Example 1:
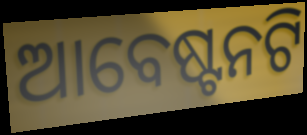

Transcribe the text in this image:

ଆବେଷ୍ଟନଟି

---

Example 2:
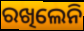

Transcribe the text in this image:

ରଖିଲେନି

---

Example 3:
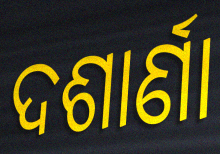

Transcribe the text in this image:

ଦଶାର୍ଣା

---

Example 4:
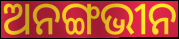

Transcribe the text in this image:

ଅନଙ୍ଗଭୀନ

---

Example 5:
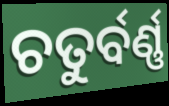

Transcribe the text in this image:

ଚତୁର୍ବର୍ଣ୍ଣ